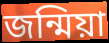
জন্মিয়া